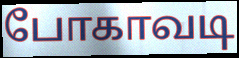
போகாவடி